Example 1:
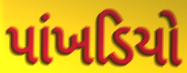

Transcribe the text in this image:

પાંખડિયો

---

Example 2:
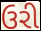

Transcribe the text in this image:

ઉરી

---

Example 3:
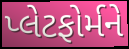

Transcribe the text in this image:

પ્લેટફોર્મને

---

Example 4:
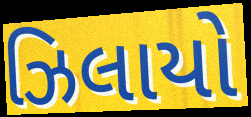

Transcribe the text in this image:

ઝિલાયો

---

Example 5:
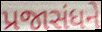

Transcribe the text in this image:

પ્રજાસંધને